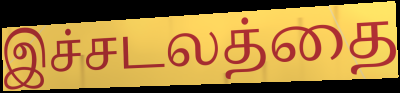
இச்சடலத்தை